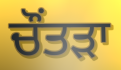
ਚੌਂਤੜਾ